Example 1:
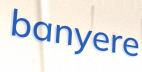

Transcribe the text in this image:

banyere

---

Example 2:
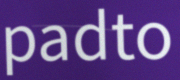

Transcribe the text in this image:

padto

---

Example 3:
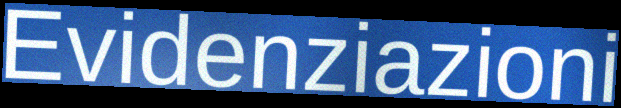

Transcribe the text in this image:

Evidenziazioni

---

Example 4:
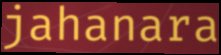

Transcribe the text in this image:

jahanara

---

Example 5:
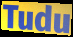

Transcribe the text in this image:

Tudu